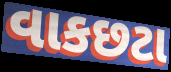
વાકછટા